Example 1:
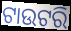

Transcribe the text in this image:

ଟାଉଟରି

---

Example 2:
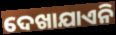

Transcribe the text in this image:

ଦେଖାଯାଏନି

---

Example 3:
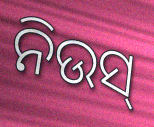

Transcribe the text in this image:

ନିଉସ୍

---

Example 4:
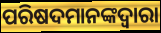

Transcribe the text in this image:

ପରିଷଦମାନଙ୍କଦ୍ୱାରା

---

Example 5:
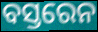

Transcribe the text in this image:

ବସ୍ତରେନ